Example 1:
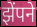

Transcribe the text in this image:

झेंपने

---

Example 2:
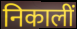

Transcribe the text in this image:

निकालीं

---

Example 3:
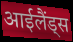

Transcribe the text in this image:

आईलैंड्स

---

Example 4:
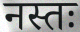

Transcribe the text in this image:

नस्तः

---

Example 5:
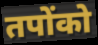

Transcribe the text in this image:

तपोंको